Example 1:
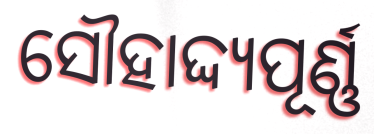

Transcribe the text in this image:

ସୌହାଦ୍ଦ୍ୟପୂର୍ଣ୍ଣ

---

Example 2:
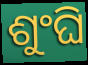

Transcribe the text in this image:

ଶୁଂଘି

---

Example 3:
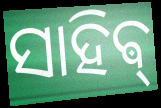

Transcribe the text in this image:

ସାହିଵ୍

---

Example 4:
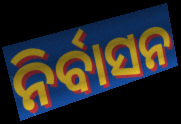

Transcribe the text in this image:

ନିର୍ବାସନ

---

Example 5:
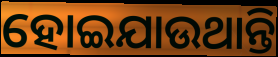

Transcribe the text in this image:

ହୋଇଯାଉଥାନ୍ତି